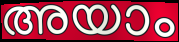
അയാം